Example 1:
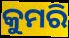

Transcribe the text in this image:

କୁମରି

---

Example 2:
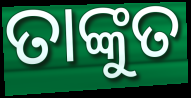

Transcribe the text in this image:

ତାଙ୍କୁତ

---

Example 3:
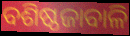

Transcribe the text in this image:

ବଶିଷ୍ଠଜାବାଳି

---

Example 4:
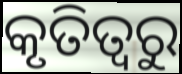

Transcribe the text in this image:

କୃତିତ୍ଵରୁ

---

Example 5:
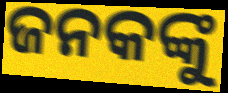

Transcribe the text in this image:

ଜନକଙ୍କୁ